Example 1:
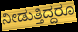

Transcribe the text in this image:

ನೀಡುತ್ತಿದ್ದರೂ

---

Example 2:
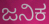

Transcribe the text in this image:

ಜನಿಕ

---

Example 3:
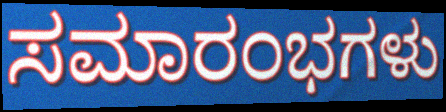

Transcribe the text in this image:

ಸಮಾರಂಭಗಳು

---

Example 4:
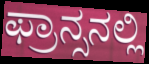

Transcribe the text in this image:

ಫ್ರಾನ್ಸನಲ್ಲಿ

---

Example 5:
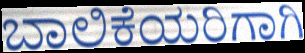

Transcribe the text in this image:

ಬಾಲಿಕೆಯರಿಗಾಗಿ